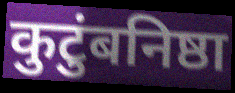
कुटुंबनिष्ठा